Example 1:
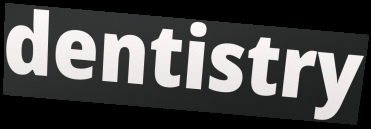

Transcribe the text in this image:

dentistry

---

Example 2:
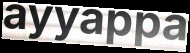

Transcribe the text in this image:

ayyappa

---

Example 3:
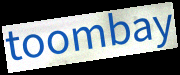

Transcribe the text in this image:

toombay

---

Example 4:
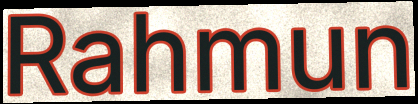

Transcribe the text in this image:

Rahmun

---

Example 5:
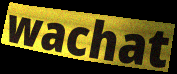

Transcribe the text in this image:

wachat